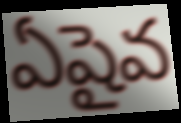
ఏషైవ